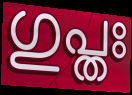
ഗുപ്തഃ